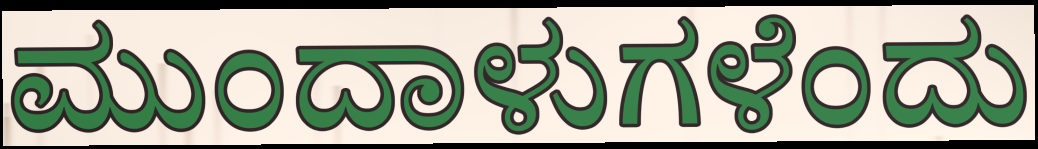
ಮುಂದಾಳುಗಳೆಂದು